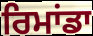
ਰਿਮਾਂਡਾ